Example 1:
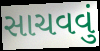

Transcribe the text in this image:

સાચવવું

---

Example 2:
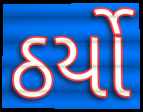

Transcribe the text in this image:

ઠર્યો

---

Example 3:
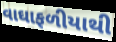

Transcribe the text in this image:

વાઘાફળીયાથી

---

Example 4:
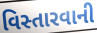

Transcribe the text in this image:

વિસ્તારવાની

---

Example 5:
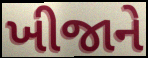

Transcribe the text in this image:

ખીજાને